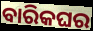
ବାରିକଘର